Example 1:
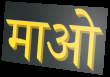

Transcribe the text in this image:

माओ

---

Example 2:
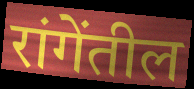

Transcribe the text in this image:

रांगेंतील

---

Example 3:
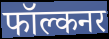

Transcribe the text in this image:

फॉल्कनर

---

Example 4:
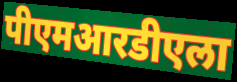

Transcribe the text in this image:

पीएमआरडीएला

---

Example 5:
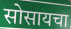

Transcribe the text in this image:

सोसायचा